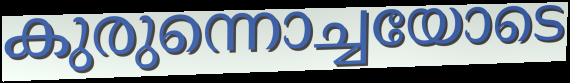
കുരുന്നൊച്ചയോടെ